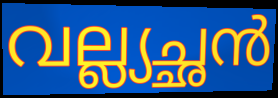
വല്ല്യച്ഛൻ